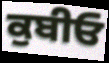
ਕੁਬੀਓ